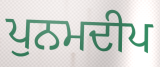
ਪੁਨਮਦੀਪ